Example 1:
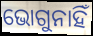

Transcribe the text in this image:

ଭୋଗୁନାହିଁ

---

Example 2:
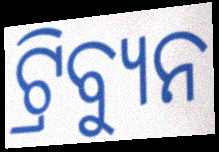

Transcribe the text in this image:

ଟ୍ରିବ୍ୟୁନ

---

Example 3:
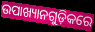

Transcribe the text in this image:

ଉପାଖ୍ୟାନଗୁଡ଼ିକରେ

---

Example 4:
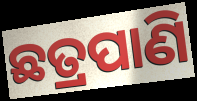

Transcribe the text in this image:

ଛତ୍ରପାଣି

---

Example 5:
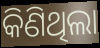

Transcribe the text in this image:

କିଣିଥିଲା